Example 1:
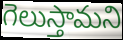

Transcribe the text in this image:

గెలుస్తామని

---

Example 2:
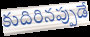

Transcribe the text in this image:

కుదిరినప్పుడే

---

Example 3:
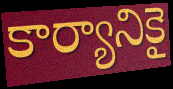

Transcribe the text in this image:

కార్యానికై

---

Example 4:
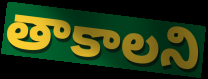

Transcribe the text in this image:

తాకాలని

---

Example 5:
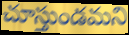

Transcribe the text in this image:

చూస్తుండమని